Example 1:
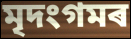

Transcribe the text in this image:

মৃদংগমৰ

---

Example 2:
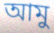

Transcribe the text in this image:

আমু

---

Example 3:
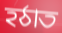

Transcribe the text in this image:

হঠাত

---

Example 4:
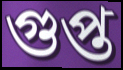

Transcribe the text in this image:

গুপ্ত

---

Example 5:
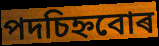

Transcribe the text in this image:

পদচিহ্নবোৰ